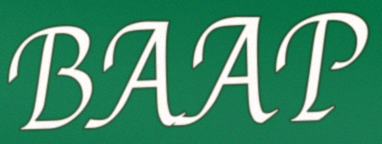
BAAP